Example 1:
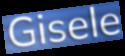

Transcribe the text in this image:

Gisele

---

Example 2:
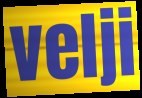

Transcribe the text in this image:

velji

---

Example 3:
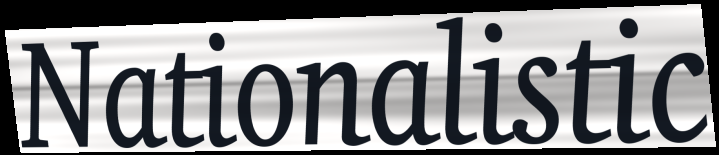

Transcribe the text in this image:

Nationalistic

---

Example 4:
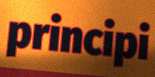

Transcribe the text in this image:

principi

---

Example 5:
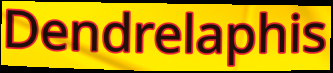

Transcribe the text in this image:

Dendrelaphis